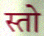
स्तो